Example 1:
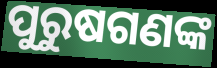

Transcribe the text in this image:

ପୁରୁଷଗଣଙ୍କ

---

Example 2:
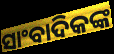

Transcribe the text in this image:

ସାଂବାଦିକଙ୍କ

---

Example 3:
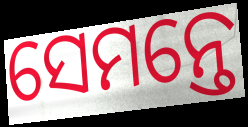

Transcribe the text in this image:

ସେମନ୍ତେ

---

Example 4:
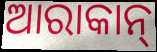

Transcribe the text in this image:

ଆରାକାନ୍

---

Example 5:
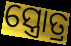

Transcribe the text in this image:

ସ୍ତ୍ରୋତ୍ର